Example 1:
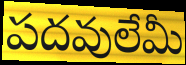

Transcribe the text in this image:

పదవులేమీ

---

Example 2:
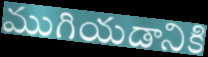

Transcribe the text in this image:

ముగియడానికి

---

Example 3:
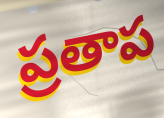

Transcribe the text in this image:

ప్రతాప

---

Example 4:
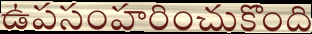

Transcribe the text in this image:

ఉపసంహరించుకొంది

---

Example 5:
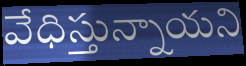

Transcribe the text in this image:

వేధిస్తున్నాయని